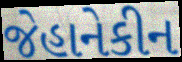
જેહાનેકીન